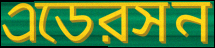
এডেরসন